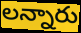
లన్నారు